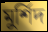
মুর্শিদ